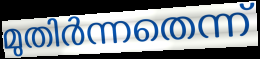
മുതിർന്നതെന്ന്